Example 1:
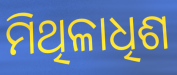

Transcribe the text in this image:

ମିଥିଳାଧିଶ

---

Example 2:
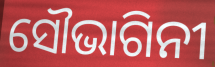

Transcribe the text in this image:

ସୌଭାଗିନୀ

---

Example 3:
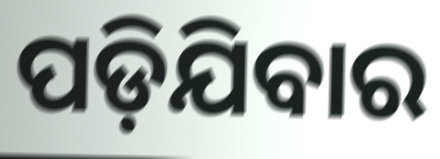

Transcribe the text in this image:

ପଡ଼ିଯିବାର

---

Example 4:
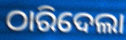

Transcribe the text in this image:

ଠାରିଦେଲା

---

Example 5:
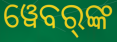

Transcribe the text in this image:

ୱେବର୍‌ଙ୍କ